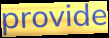
provide